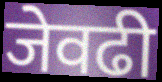
जेवढी